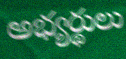
అభ్యర్థులు